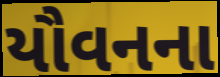
યૌવનના